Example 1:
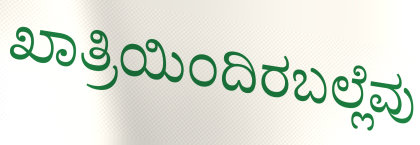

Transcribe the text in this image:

ಖಾತ್ರಿಯಿಂದಿರಬಲ್ಲೆವು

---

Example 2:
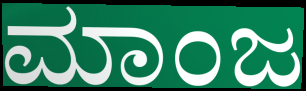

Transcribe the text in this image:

ಮಾಂಜ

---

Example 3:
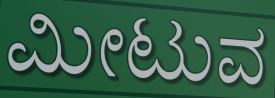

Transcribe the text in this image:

ಮೀಟುವ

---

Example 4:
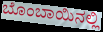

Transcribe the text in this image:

ಬೊಂಬಾಯಿನಲ್ಲಿ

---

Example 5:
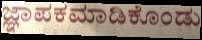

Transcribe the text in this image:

ಜ್ಞಾಪಕಮಾಡಿಕೊಂಡು